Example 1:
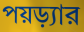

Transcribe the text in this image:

পয়ড়্যার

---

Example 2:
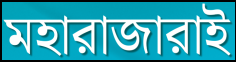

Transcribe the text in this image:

মহারাজারাই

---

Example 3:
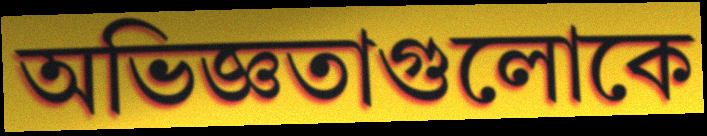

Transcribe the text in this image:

অভিজ্ঞতাগুলোকে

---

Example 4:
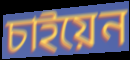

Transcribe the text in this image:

চাইয়েন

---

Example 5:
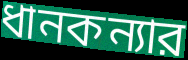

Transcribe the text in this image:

ধানকন্যার